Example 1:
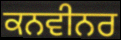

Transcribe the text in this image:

ਕਨਵੀਨਰ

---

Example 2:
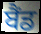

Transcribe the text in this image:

ਬੈੰਡ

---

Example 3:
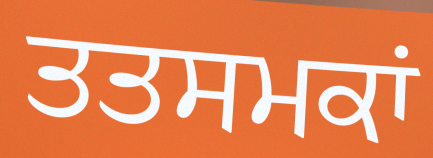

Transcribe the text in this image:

ਤਤਸਮਕਾਂ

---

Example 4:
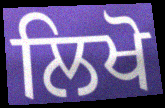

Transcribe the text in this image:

ਲਿਖੋ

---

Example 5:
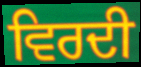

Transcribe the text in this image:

ਵਿਰਦੀ